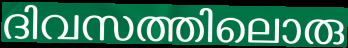
ദിവസത്തിലൊരു